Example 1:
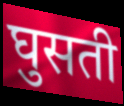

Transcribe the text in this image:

घुसती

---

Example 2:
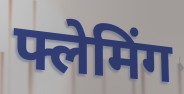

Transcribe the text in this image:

फ्लेमिंग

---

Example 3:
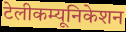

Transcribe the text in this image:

टेलीकम्‍यूनिकेशन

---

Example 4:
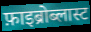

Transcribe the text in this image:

फ़ाइब्रोब्लास्ट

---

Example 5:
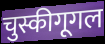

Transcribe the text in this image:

चुस्कीगूगल